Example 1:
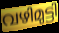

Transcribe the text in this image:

വഴിമുട്ടി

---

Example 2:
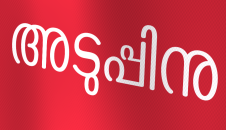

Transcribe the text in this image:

അടുപ്പിനു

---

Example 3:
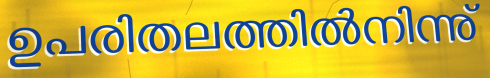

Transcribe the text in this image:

ഉപരിതലത്തിൽനിന്നു്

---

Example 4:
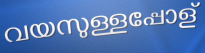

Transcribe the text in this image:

വയസുള്ളപ്പോള്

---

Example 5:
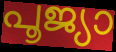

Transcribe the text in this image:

പൂജ്യാ